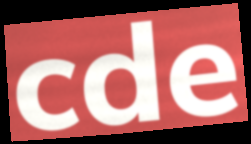
cde